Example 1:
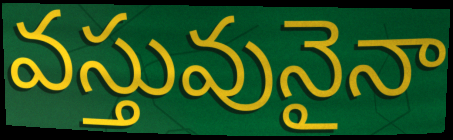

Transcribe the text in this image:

వస్తువునైనా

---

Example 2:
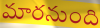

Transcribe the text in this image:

మారనుంది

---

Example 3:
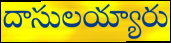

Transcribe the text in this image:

దాసులయ్యారు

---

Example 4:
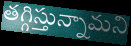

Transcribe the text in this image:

తగ్గిస్తున్నామని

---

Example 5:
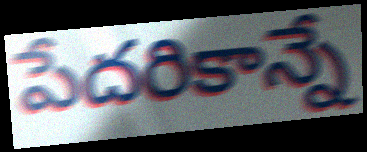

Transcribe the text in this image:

పేదరికాన్నే